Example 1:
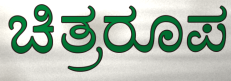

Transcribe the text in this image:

ಚಿತ್ರರೂಪ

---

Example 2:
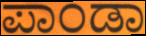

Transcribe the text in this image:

ಪಾಂಡಾ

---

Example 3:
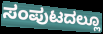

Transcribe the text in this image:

ಸಂಪುಟದಲ್ಲೂ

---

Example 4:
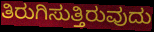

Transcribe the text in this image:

ತಿರುಗಿಸುತ್ತಿರುವುದು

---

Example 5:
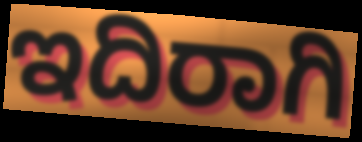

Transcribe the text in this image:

ಇದಿರಾಗಿ